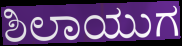
ಶಿಲಾಯುಗ